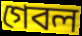
গেবল